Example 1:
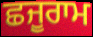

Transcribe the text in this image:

ਛਜੂਰਾਮ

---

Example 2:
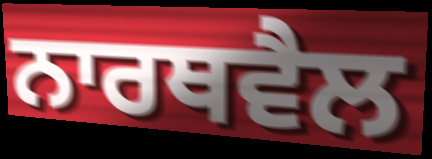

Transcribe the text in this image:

ਨਾਰਥਵੈਲ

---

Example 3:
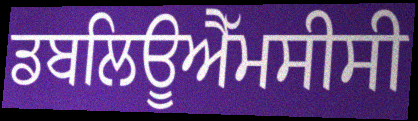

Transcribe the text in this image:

ਡਬਲਿਊਐੱਮਸੀਸੀ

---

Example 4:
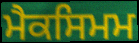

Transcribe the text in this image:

ਮੈਕਸਿਮਮ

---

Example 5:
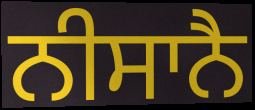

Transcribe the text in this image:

ਨੀਸਾਨੈ